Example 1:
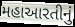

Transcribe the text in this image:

મહાઆરતીનું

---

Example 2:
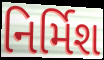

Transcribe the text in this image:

નિર્મિશ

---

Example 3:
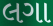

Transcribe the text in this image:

લગા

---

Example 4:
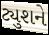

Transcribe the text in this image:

ટ્યુશને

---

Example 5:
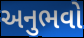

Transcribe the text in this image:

અનુભવો